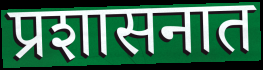
प्रशासनात